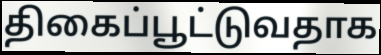
திகைப்பூட்டுவதாக